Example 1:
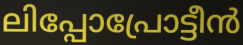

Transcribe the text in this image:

ലിപ്പോപ്രോട്ടീൻ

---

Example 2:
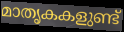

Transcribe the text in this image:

മാതൃകകളുണ്ട്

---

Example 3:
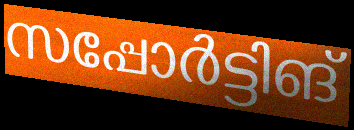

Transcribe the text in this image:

സപ്പോർട്ടിങ്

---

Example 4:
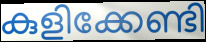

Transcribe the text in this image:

കുളിക്കേണ്ടി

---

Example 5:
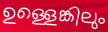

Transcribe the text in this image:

ഉള്ളെങ്കിലും